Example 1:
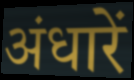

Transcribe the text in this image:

अंधारें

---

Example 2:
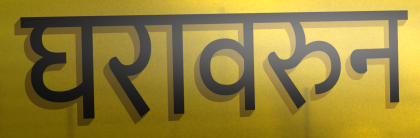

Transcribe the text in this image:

घरावरुन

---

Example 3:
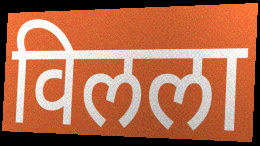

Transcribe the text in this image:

विलला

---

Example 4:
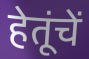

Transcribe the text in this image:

हेतूंचें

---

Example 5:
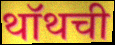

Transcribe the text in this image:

थॉथची